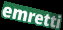
emretti